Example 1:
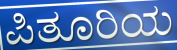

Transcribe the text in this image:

ಪಿತೂರಿಯ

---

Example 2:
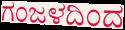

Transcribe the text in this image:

ಗಂಜಳದಿಂದ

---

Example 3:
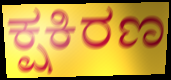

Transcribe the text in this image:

ಕ್ಷಕಿರಣ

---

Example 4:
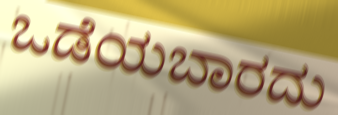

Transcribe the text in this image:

ಒಡೆಯಬಾರದು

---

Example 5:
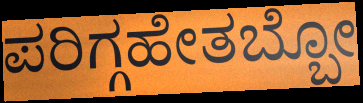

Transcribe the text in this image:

ಪರಿಗ್ಗಹೇತಬ್ಬೋ